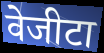
वेजीटा